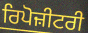
ਰਿਪੋਜ਼ੀਟਰੀ